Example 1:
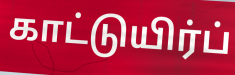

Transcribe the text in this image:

காட்டுயிர்ப்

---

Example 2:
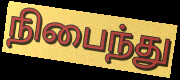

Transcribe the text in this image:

நிபைந்து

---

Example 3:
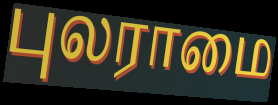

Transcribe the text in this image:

புலராமை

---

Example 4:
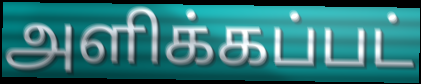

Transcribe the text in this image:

அளிக்கப்பட்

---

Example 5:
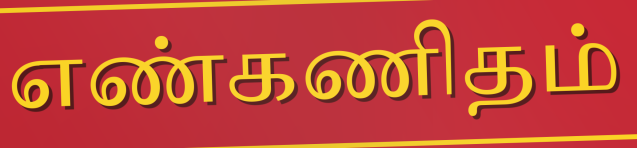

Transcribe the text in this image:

எண்கணிதம்